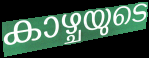
കാഴ്ചയുടെ